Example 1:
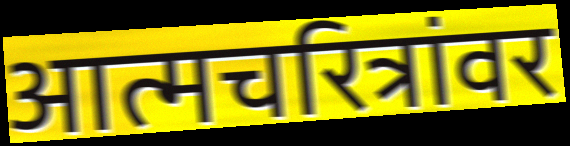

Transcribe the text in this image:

आत्मचरित्रांवर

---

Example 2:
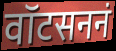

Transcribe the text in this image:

वॉटसननं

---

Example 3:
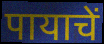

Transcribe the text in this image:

पायाचें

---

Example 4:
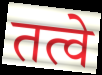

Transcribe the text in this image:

तत्वे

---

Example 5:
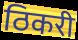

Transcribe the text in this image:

ठिकरी